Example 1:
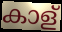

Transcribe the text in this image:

കാള്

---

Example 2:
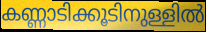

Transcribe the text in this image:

കണ്ണാടിക്കൂടിനുള്ളിൽ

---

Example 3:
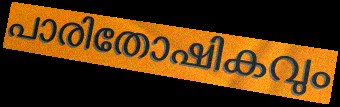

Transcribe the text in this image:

പാരിതോഷികവും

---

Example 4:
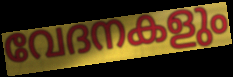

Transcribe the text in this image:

വേദനകളും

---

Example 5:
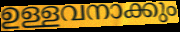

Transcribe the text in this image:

ഉള്ളവനാക്കും